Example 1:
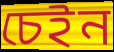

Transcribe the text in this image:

চেইন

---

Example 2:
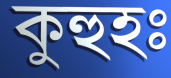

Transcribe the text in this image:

কুহুহঃ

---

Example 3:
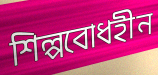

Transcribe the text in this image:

শিল্পবোধহীন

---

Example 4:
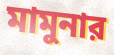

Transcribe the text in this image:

মামুনার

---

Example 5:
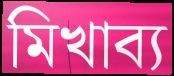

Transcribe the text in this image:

মিখাব্য